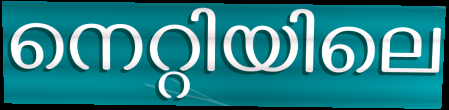
നെറ്റിയിലെ